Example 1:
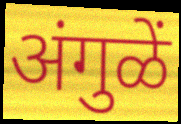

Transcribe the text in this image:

अंगुळें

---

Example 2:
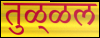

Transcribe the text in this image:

तुळ्‌ळल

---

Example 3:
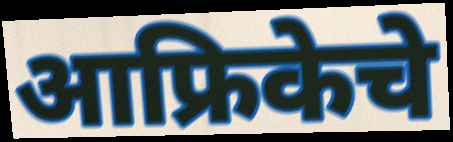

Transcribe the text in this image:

आफ्रिकेचे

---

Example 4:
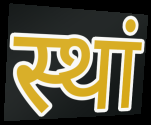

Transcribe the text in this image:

स्थां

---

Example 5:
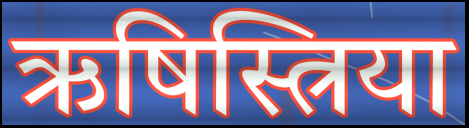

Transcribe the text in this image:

ऋषिस्त्रिया